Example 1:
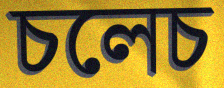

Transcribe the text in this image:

চলেচ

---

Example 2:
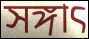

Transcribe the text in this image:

সঙ্গাৎ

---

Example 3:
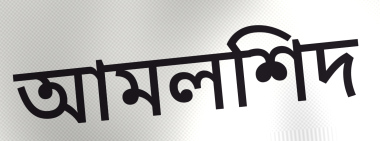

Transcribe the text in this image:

আমলশিদ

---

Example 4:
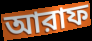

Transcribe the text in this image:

আরাফ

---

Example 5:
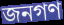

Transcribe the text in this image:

জনগণ